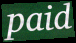
paid